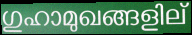
ഗുഹാമുഖങ്ങളില്